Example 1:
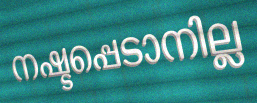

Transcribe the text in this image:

നഷ്ടപ്പെടാനില്ല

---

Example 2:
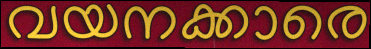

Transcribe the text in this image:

വയനക്കാരെ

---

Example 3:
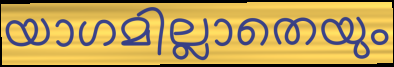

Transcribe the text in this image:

യാഗമില്ലാതെയും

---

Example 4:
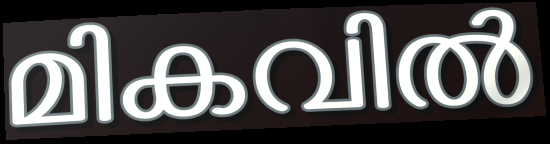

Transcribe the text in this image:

മികവിൽ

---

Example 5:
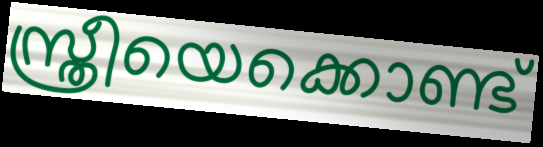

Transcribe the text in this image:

സ്ത്രീയെക്കൊണ്ട്